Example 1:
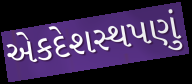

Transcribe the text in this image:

એકદેશસ્થપણું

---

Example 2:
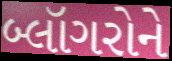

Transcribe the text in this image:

બ્લૉગરોને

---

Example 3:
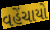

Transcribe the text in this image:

વહેંચાયો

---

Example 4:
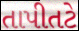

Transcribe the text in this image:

તાપીતટે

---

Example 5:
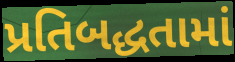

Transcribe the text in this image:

પ્રતિબદ્ધતામાં